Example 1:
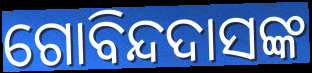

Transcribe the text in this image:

ଗୋବିନ୍ଦଦାସଙ୍କ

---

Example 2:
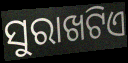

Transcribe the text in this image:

ସୁରାଖଟିଏ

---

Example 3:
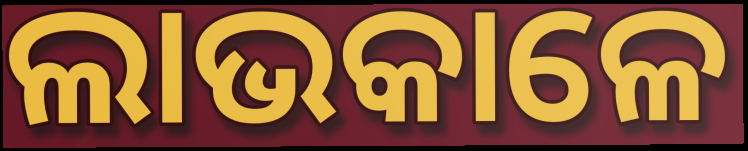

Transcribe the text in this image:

ଲାଭକାଳେ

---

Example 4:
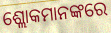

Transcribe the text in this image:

ଶ୍ଲୋକମାନଙ୍କରେ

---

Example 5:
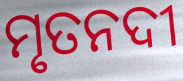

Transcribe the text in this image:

ମୃତନଦୀ